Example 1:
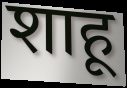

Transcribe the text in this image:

शाहू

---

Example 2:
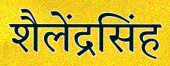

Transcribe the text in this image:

शैलेंद्रसिंह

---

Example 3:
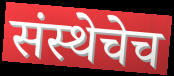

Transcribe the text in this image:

संस्थेचेच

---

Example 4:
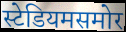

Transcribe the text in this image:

स्टेडियमसमोर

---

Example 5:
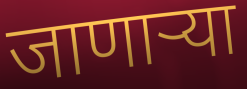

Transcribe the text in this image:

जाणाऱ्या